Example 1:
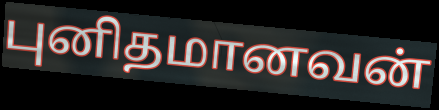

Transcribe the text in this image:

புனிதமானவன்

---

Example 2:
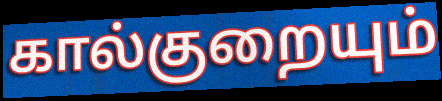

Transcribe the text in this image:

கால்குறையும்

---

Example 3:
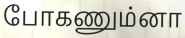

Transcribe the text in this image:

போகணும்னா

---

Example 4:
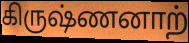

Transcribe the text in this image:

கிருஷ்ணனாற்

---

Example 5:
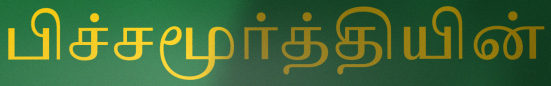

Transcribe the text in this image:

பிச்சமூர்த்தியின்